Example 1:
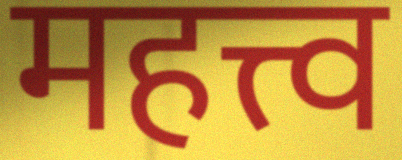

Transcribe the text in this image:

महत्त्व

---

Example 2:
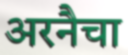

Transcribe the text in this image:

अरनैचा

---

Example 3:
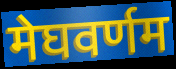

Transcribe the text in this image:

मेघवर्णम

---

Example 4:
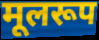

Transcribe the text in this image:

मूलरूप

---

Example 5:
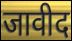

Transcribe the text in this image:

जावीद